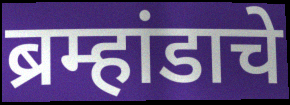
ब्रम्हांडाचे